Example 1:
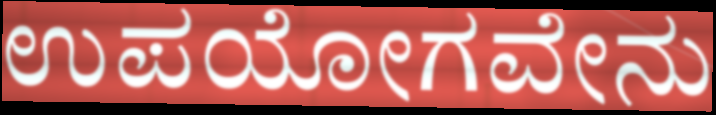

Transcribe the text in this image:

ಉಪಯೋಗವೇನು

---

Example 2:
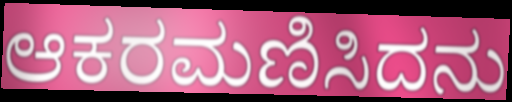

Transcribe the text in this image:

ಆಕರಮಣಿಸಿದನು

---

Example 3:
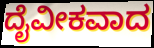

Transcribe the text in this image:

ದೈವೀಕವಾದ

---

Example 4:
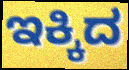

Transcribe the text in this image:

ಇಕ್ಕಿದ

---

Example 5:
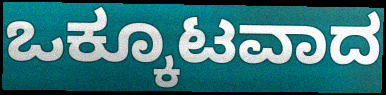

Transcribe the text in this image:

ಒಕ್ಕೂಟವಾದ